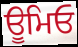
ਊਮਿਓ